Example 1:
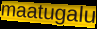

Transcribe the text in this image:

maatugalu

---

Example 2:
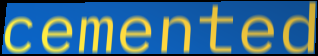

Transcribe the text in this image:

cemented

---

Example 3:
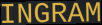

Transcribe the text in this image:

INGRAM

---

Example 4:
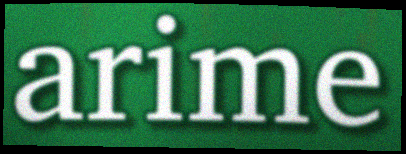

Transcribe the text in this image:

arime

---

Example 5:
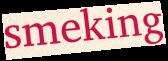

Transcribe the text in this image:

smeking